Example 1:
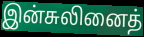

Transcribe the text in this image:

இன்சுலினைத்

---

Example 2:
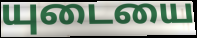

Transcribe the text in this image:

யுடையை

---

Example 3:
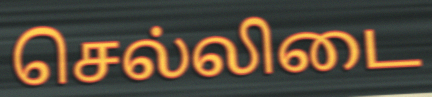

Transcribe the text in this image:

செல்லிடை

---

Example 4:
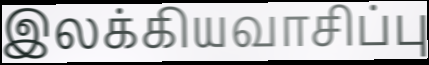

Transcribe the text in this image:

இலக்கியவாசிப்பு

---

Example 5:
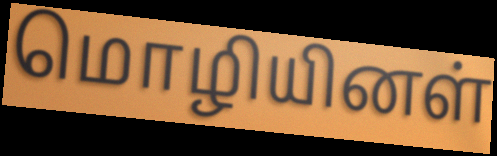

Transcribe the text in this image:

மொழியினள்